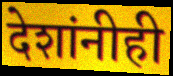
देशांनीही